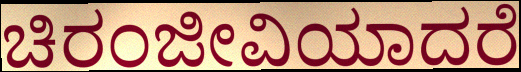
ಚಿರಂಜೀವಿಯಾದರೆ